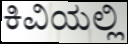
ಕಿವಿಯಲ್ಲಿ